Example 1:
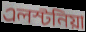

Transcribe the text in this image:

এলস্টনিয়া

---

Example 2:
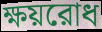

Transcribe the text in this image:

ক্ষয়রোধ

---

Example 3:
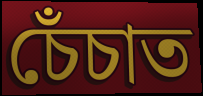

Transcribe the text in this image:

চেঁচাত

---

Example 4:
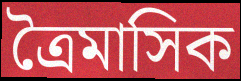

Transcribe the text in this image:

ত্রৈমাসিক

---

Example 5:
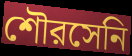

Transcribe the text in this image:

শৌরসেনি